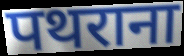
पथराना